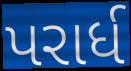
પરાર્ધ